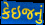
કેઇજનું